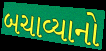
બચાવ્યાનો